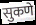
सुकणे